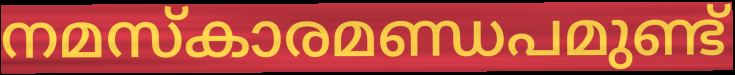
നമസ്കാരമണ്ഡപമുണ്ട്